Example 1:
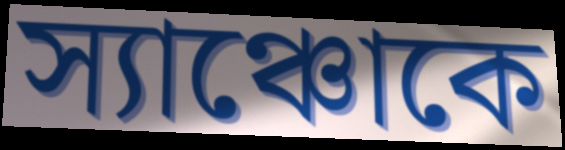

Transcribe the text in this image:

স্যাঞ্চোকে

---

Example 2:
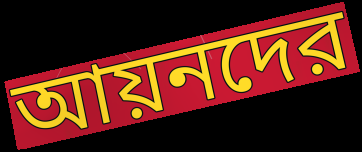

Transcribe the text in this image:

আয়নদের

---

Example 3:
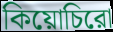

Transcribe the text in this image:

কিয়োচিরো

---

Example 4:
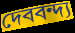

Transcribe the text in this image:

দেববন্দ্য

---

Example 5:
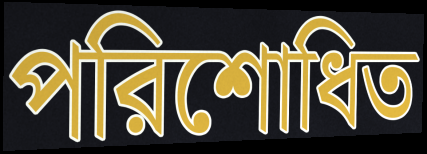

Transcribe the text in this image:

পরিশোধিত